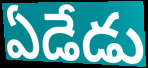
ఏడేడు